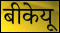
बीकेयू